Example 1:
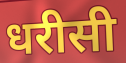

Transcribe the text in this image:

धरीसी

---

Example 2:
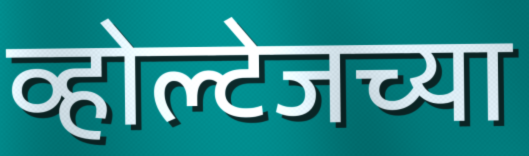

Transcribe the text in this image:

व्होल्टेजच्या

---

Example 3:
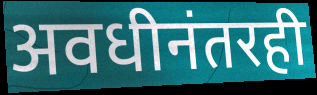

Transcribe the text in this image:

अवधीनंतरही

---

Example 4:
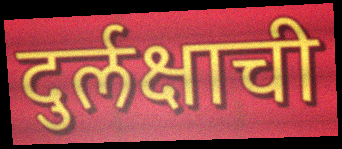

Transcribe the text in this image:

दुर्लक्षाची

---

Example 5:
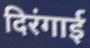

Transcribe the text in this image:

दिरंगाई